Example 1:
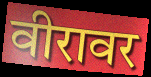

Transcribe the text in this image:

वीरावर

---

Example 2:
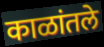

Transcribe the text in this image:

काळांतले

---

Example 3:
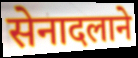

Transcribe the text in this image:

सेनादलाने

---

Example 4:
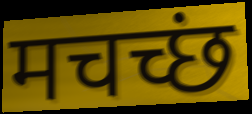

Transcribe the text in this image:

मचच्छं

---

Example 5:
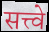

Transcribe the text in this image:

सत्त्वे